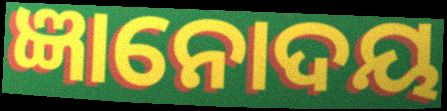
ଜ୍ଞାନୋଦୟ